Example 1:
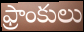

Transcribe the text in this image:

ఫ్రాంకులు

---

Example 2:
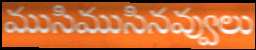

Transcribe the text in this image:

ముసిముసినవ్వులు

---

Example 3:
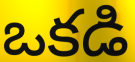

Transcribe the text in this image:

ఒకడి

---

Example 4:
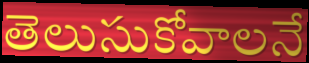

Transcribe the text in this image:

తెలుసుకోవాలనే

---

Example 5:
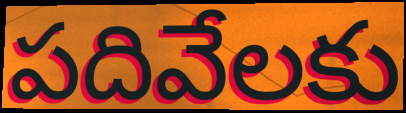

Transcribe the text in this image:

పదివేలకు